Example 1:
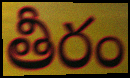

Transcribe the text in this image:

తీరం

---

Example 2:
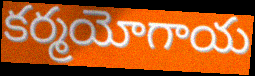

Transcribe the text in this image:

కర్మయోగాయ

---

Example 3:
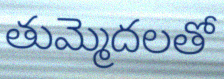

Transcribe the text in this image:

తుమ్మెదలతో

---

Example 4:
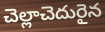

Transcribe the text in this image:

చెల్లాచెదురైన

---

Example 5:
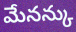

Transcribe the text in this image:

మేనన్కు